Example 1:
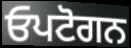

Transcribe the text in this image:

ਓਪਟੋਗਨ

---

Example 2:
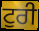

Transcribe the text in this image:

ਟੁਰੀ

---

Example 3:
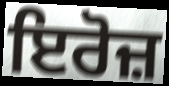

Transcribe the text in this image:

ਇਰੋਜ਼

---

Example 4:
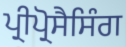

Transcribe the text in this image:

ਪ੍ਰੀਪ੍ਰੋਸੈਸਿੰਗ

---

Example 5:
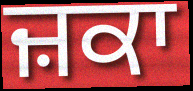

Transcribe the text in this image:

ਜ਼ਕਾ